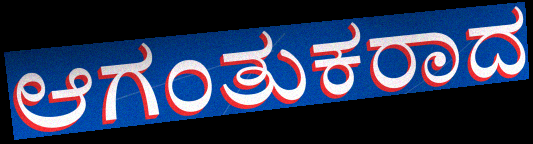
ಆಗಂತುಕರಾದ